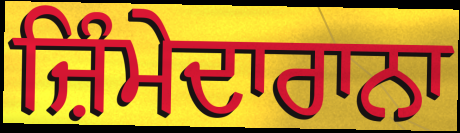
ਜ਼ਿੰਮੇਦਾਰਾਨਾ